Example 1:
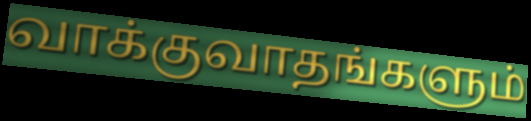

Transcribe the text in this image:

வாக்குவாதங்களும்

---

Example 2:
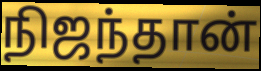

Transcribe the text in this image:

நிஜந்தான்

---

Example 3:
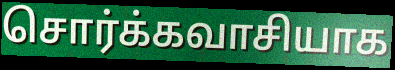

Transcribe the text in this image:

சொர்க்கவாசியாக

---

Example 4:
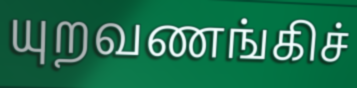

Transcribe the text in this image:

யுறவணங்கிச்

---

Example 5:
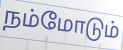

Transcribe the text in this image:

நம்மோடும்